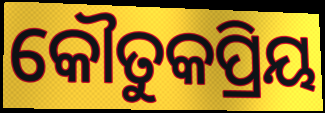
କୌତୁକପ୍ରିୟ